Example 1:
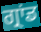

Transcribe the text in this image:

ਗ੍ਰਾਂਡ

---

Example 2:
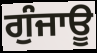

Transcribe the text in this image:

ਗੁੰਜਾਊ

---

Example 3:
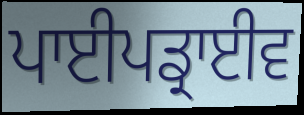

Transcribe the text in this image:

ਪਾਈਪਡ੍ਰਾਈਵ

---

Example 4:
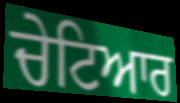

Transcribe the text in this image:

ਚੇਟਿਆਰ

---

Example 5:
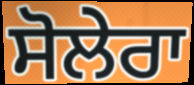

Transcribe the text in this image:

ਸੋਲੇਰਾ